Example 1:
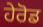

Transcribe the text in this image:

ਹੇਰੋਡ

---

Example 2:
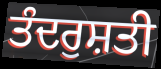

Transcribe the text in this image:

ਤੰਦਰੁਸ਼ਤੀ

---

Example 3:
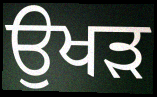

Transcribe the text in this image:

ਉਖੜ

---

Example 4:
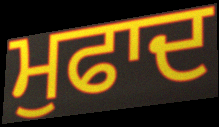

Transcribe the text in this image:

ਮੁਫਾਦ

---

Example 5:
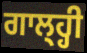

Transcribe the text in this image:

ਗਾਲ੍ਹ੍ਹੀ